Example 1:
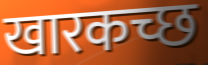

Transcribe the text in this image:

खारकच्छ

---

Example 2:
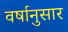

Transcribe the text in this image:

वर्षानुसार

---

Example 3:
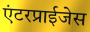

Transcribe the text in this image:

एंटरप्राईजेस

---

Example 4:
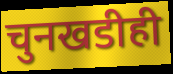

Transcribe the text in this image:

चुनखडीही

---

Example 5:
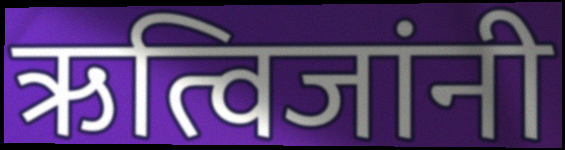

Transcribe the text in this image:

ऋत्विजांनी